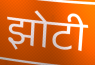
झोटी